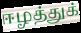
ஈழத்துக்